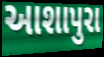
આશાપુરા